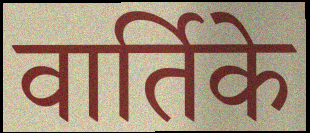
वार्तिके